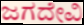
ಜಗದೇವಿ